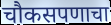
चौकसपणाचा